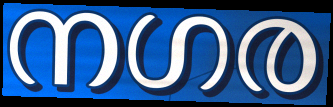
നഗര